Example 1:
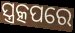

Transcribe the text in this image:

ସ୍ତ୍ରତ୍କପରେ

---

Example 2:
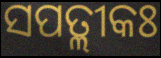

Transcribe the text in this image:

ସପତ୍ଲୀକଃ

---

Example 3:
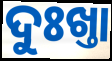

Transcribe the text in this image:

ଦୁଃଖ୍ତା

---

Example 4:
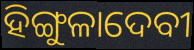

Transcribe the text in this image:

ହିଙ୍ଗୁଳାଦେବୀ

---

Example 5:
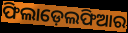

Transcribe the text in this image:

ଫିଲାଡ଼େଲଫିଆର